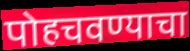
पोहचवण्याचा